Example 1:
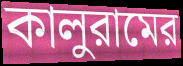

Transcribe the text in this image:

কালুরামের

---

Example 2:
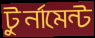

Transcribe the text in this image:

টুর্নামেন্ট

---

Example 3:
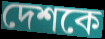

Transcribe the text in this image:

দেশকে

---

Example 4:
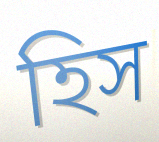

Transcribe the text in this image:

হিস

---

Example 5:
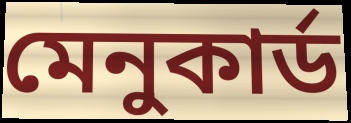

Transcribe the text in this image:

মেনুকার্ড